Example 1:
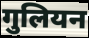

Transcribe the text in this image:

गुलियन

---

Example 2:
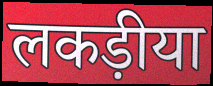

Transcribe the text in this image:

लकड़ीया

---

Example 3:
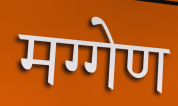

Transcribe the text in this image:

मग्गेण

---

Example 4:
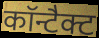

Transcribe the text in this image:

कॉन्टैक्ट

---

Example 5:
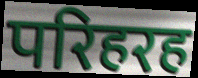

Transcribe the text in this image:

परिहरह